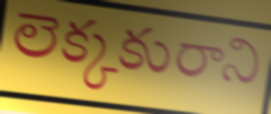
లెక్కకురాని